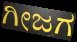
ಗೀಜಗ